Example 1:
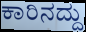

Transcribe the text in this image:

ಕಾರಿನದ್ದು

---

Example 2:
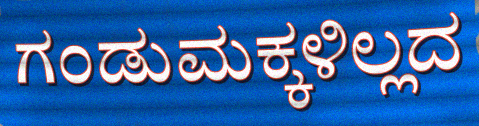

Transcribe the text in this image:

ಗಂಡುಮಕ್ಕಳಿಲ್ಲದ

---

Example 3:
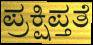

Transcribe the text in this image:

ಪ್ರಕ್ಷಿಪ್ತತೆ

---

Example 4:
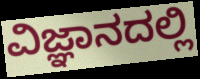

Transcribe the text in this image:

ವಿಜ್ಞಾನದಲ್ಲಿ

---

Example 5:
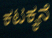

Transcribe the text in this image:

ಕಟಕ್ಕನೆ